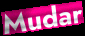
Mudar